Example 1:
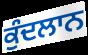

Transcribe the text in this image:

ਕੁੰਦਲਾਨ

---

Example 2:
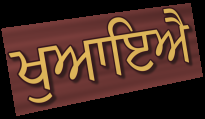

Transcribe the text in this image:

ਖੁਆਇਐ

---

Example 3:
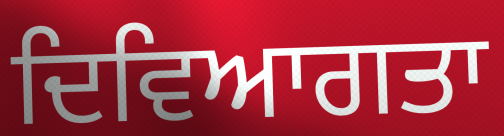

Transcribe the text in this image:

ਦਿਵਿਆਗਤਾ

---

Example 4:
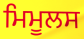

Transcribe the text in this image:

ਮਿਮੂਲਸ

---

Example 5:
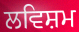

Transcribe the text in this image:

ਲਵਿਸ਼ਮ